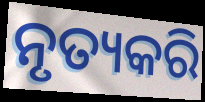
ନୃତ୍ୟକରି